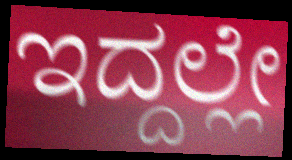
ಇದ್ದಲ್ಲೇ